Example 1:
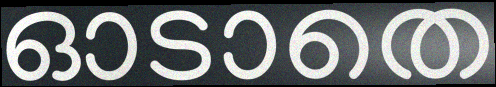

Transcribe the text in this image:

ഓടാതെ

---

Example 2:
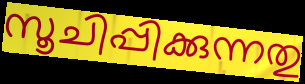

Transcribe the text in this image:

സൂചിപ്പിക്കുന്നതു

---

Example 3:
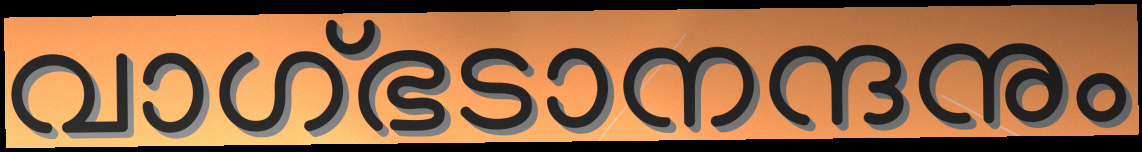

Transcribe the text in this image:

വാഗ്ഭടാനന്ദനും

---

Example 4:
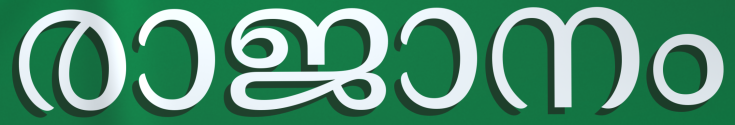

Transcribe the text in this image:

രാജാനം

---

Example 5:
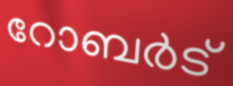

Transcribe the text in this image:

റോബർട്